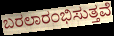
ಬರಲಾರಂಭಿಸುತ್ತವೆ